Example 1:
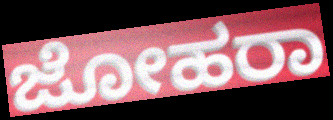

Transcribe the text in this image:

ಜೋಹರಾ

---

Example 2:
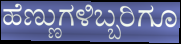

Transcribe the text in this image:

ಹೆಣ್ಣುಗಳಿಬ್ಬರಿಗೂ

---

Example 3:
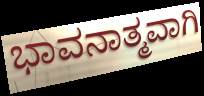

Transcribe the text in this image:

ಭಾವನಾತ್ಮವಾಗಿ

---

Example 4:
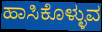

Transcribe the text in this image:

ಹಾಸಿಕೊಳ್ಳುವ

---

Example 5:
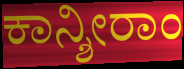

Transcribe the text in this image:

ಕಾನ್ಶೀರಾಂ